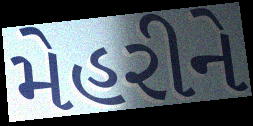
મેહરીને